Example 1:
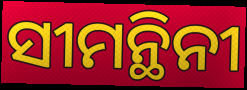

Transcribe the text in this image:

ସୀମନ୍ଥିନୀ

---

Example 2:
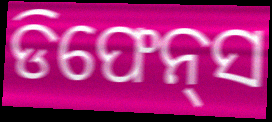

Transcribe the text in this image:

ଡିଫେନ୍‌ସ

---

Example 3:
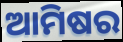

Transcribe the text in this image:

ଆମିଷର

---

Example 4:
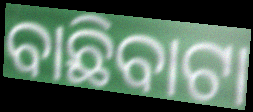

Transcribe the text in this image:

ବାଛିବାଟା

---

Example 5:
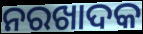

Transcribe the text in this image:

ନରଖାଦକ